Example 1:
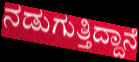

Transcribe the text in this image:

ನಡುಗುತ್ತಿದ್ದಾನೆ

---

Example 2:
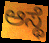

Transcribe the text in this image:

ಆಸ್ಥೆ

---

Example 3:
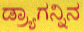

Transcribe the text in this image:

ಡ್ರ್ಯಾಗನ್ನಿನ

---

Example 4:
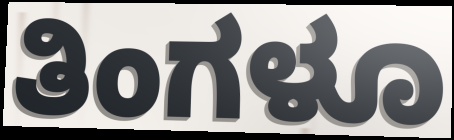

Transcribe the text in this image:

ತಿಂಗಳೂ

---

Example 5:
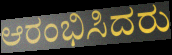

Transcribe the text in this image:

ಆರಂಭಿಸಿದರು